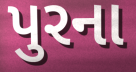
પુરના